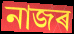
নাজৰ